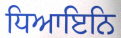
ਧਿਆਇਨਿ